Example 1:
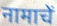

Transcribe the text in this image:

नामाचें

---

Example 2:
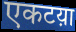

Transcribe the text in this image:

एकटय़ा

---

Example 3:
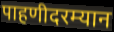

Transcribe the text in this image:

पाहणीदरम्यान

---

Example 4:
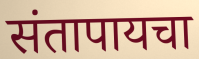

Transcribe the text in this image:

संतापायचा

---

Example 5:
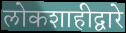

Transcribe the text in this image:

लोकशाहीद्वारे